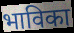
भाविका